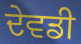
ਦੇਵਡੀ